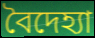
বৈদেহ্যা